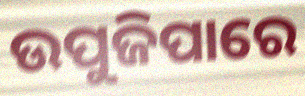
ଉପୁଜିପାରେ